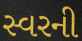
સ્વરની